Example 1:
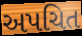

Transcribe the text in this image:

અપચિત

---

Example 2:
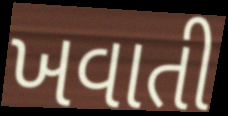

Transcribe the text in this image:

ખવાતી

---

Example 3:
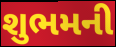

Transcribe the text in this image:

શુભમની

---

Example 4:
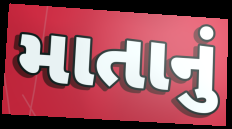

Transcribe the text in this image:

માતાનું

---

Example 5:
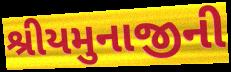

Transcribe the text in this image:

શ્રીયમુનાજીની